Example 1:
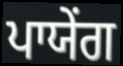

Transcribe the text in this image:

ਪਾਯੇਂਗ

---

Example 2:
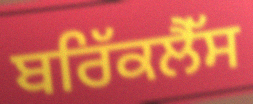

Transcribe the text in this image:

ਬਰਿੱਕਲੈੱਸ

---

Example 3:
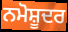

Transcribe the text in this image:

ਨਮੋਸ਼ੂਦਰ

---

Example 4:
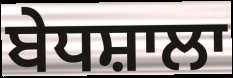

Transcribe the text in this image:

ਬੇਧਸ਼ਾਲਾ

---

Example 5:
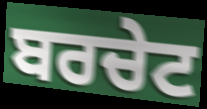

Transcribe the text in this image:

ਬਰਚੇਟ